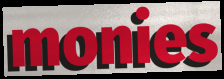
monies